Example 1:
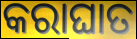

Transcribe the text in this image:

କରାଘାତ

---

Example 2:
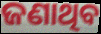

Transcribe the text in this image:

ଜଣାଥିବ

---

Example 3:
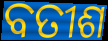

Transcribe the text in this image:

ବତୀଶ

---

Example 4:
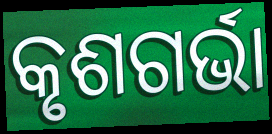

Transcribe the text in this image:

କୃଶଗର୍ଭା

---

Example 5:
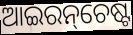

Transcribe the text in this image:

ଆଇରନ୍‌ଚେଷ୍ଟ